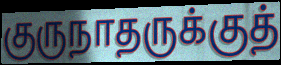
குருநாதருக்குத்